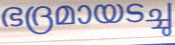
ഭദ്രമായടച്ചു